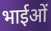
भाईओं